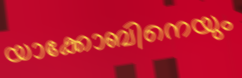
യാക്കോബിനെയും